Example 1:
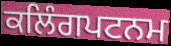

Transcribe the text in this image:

ਕਲਿੰਗਪਟਨਮ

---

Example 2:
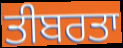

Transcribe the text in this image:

ਤੀਬਰਤਾ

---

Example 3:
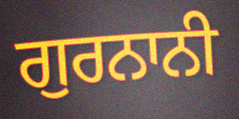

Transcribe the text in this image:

ਗੁਰਨਾਨੀ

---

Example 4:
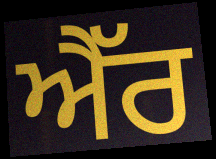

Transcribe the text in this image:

ਐੱਰ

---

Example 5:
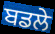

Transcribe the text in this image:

ਬਡਲੇ